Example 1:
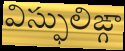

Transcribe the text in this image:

విస్ఫులిఙ్గా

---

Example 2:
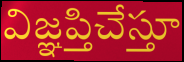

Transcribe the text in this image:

విజ్ఞప్తిచేస్తూ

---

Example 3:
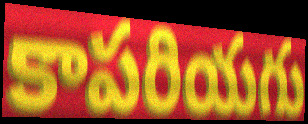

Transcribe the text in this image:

కాపరియగు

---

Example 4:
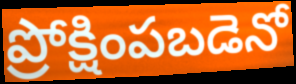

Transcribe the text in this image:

ప్రోక్షింపబడెనో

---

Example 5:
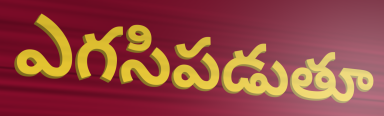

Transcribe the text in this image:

ఎగసిపడుతూ